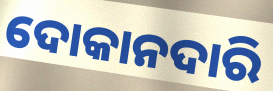
ଦୋକାନଦାରି